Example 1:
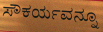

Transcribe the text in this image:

ಸೌಕರ್ಯವನ್ನೂ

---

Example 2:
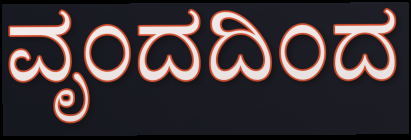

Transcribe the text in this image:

ವೃಂದದಿಂದ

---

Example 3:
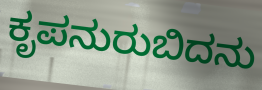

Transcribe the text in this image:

ಕೃಪನುರುಬಿದನು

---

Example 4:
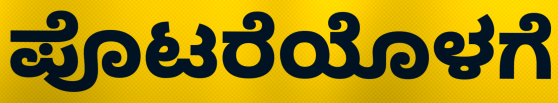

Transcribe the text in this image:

ಪೊಟರೆಯೊಳಗೆ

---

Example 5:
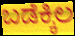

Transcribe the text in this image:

ಬಡೆಕ್ಕಿಲ